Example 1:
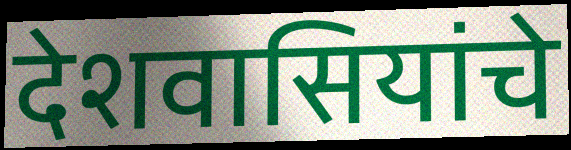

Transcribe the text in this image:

देशवासियांचे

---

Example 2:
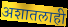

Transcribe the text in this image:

अशातलाही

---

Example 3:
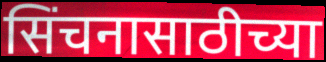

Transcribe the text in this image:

सिंचनासाठीच्या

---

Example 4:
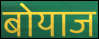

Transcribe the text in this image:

बोयाज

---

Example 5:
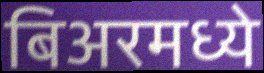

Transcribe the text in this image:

बिअरमध्ये